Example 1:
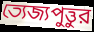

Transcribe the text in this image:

ত্যেজ্যপুত্তুর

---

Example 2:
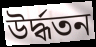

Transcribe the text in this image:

উর্দ্ধতন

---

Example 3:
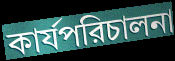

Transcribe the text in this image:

কার্যপরিচালনা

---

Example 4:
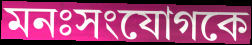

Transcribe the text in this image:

মনঃসংযোগকে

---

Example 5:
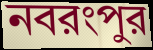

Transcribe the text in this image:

নবরংপুর